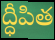
ద్ధీపిత